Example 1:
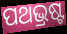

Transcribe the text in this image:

ପଥଭ୍ରଷ୍ଟ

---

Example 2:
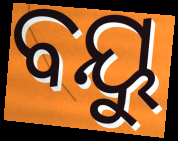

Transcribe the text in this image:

ବୟୁ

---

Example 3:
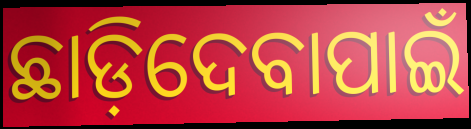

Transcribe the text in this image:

ଛାଡ଼ିଦେବାପାଇଁ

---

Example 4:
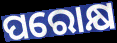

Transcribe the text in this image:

ପରୋକ୍ଷ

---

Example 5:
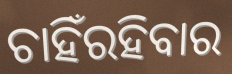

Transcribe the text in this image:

ଚାହିଁରହିବାର